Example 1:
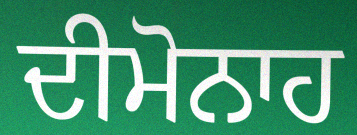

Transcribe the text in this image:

ਦੀਮੋਨਾਹ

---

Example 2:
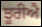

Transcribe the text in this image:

ਝੂਰੀਐ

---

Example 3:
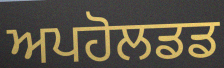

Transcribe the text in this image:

ਅਪਹੋਲਡਡ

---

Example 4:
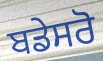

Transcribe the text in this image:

ਬਡੇਸਰੋ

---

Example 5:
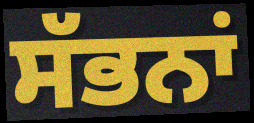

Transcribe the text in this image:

ਸੱਭਨਾਂ